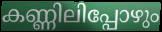
കണ്ണിലിപ്പോഴും